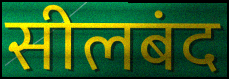
सीलबंद